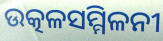
ଉତ୍କଳସମ୍ମିଳନୀ